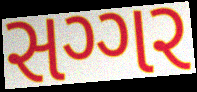
સગ્ગર